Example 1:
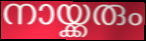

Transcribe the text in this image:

നായ്ക്കരും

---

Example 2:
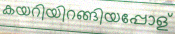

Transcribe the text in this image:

കയറിയിറങ്ങിയപ്പോള്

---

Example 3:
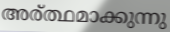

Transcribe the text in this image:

അര്ത്ഥമാക്കുന്നു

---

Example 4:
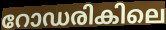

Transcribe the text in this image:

റോഡരികിലെ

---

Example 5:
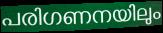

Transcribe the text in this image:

പരിഗണനയിലും